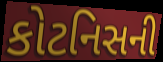
કોટનિસની